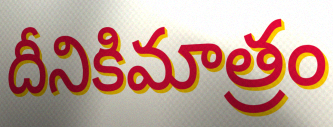
దీనికిమాత్రం